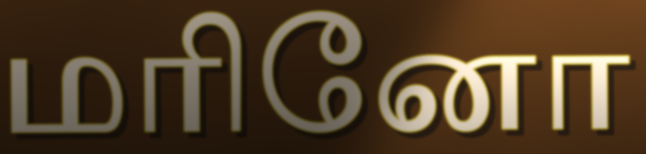
மரினோ